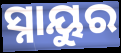
ସ୍ନାୟୁର